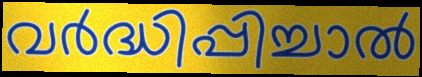
വർദ്ധിപ്പിച്ചാൽ